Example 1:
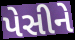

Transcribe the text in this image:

પેસીને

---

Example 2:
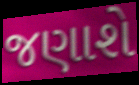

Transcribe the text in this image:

જણાશે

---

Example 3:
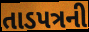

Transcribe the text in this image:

તાડપત્રની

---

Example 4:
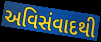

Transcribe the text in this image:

અવિસંવાદથી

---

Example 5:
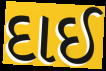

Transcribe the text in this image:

દાઈ